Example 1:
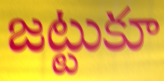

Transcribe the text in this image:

జట్టుకూ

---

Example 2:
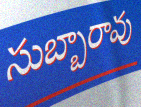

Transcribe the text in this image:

సుబ్బారావు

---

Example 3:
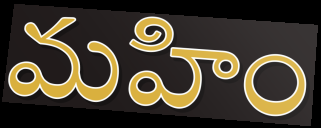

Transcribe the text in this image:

మహిం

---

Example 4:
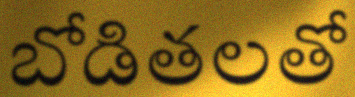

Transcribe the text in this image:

బోడితలతో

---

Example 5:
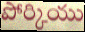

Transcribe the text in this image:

పోర్కియు